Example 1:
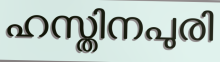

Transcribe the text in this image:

ഹസ്തിനപുരി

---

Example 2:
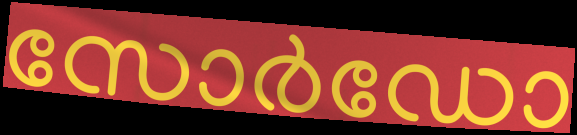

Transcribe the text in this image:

സോർഡോ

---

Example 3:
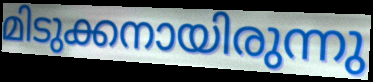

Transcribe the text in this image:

മിടുക്കനായിരുന്നു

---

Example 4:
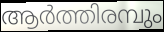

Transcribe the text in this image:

ആർത്തിരമ്പും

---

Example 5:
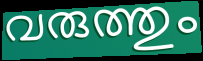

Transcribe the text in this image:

വരുത്തും